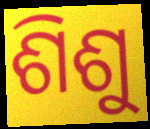
ଶିଶୁ